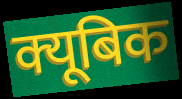
क्‍यूबिक